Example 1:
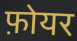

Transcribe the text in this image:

फ़ोयर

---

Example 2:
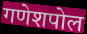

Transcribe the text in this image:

गणेशपोल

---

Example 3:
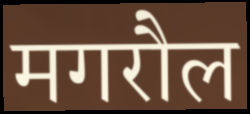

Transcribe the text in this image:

मगरौल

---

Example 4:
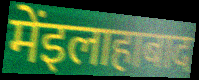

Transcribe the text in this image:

मेंइलाहाबाद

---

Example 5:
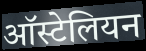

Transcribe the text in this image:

ऑस्टेलियन